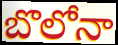
బొలోనా